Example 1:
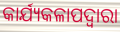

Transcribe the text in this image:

କାର୍ଯ୍ୟକଳାପଦ୍ୱାରା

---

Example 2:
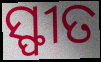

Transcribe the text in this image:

ସ୍ଫୀତ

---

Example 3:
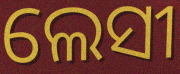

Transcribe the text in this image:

ଲେସୀ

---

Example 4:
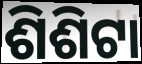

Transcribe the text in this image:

ଶିଶିଟା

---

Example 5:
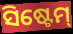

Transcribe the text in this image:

ସିଷ୍ଟେମ୍